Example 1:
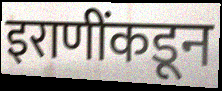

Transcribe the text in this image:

इराणींकडून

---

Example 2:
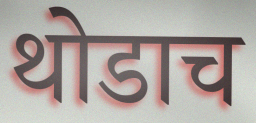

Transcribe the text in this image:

थोडाच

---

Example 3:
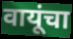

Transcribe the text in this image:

वायूंचा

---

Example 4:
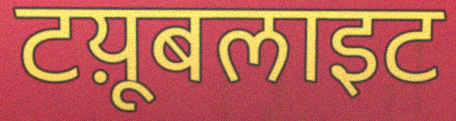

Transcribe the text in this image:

टय़ूबलाइट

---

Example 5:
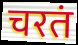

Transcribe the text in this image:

चरतं